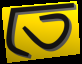
তে